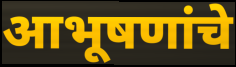
आभूषणांचे